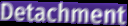
Detachment